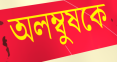
অলম্বুষকে